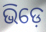
ଭିଡ଼େ